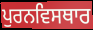
ਪੁਰਨਵਿਸਥਾਰ